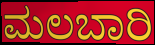
ಮಲಬಾರಿ